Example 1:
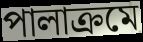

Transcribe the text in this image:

পালাক্রমে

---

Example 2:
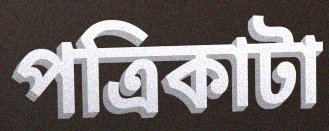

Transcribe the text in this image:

পত্রিকাটা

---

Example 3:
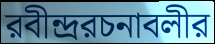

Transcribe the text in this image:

রবীন্দ্ররচনাবলীর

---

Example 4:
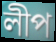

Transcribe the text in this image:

লীপ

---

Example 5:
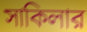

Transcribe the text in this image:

সাকিলার